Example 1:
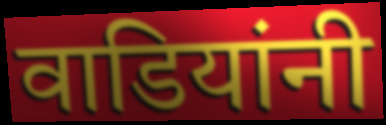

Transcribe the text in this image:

वाडियांनी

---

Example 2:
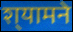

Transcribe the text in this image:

श्यामने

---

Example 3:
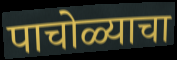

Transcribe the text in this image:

पाचोळ्याचा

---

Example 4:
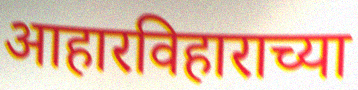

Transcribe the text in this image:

आहारविहाराच्या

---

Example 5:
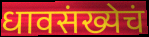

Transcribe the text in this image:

धावसंख्येचं